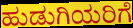
ಹುಡುಗಿಯರಿಗೆ